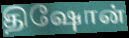
திஷோன்